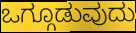
ಒಗ್ಗೂಡುವುದು